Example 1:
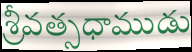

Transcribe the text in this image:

శ్రీవత్సధాముడు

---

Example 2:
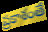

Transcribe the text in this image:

ప్రకాశంతే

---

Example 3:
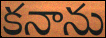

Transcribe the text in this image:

కనాను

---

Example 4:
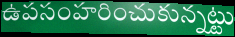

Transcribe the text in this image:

ఉపసంహరించుకున్నట్టు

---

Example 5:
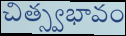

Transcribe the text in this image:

చిత్స్వభావం